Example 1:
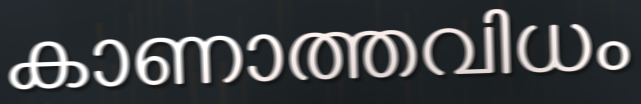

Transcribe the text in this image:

കാണാത്തവിധം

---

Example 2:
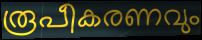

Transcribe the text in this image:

രൂപീകരണവും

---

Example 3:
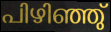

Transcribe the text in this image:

പിഴിഞ്ഞു്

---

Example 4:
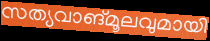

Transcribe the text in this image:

സത്യവാങ്മൂലവുമായി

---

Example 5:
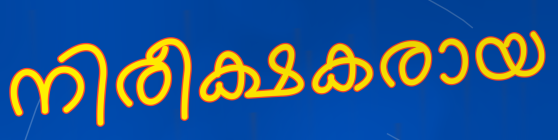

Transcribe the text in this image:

നിരീക്ഷകരായ